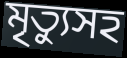
মৃত্যুসহ